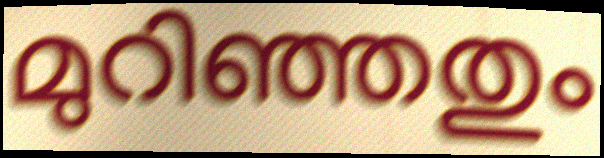
മുറിഞ്ഞതും